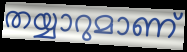
തയ്യാറുമാണ്